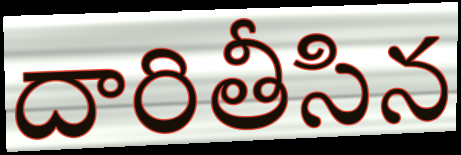
దారితీసిన